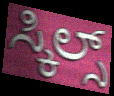
ಸ್ಕಿಲ್ಸ್